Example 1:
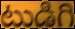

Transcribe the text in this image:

టుడిగి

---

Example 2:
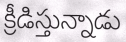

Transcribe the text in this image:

క్రీడిస్తున్నాడు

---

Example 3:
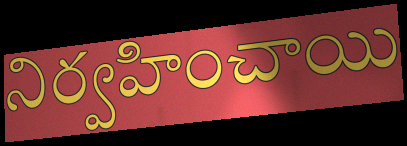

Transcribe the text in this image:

నిర్వహించాయి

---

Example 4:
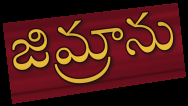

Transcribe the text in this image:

జిమ్రాను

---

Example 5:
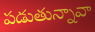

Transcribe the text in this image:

పడుతున్నావా